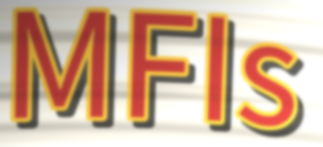
MFIs